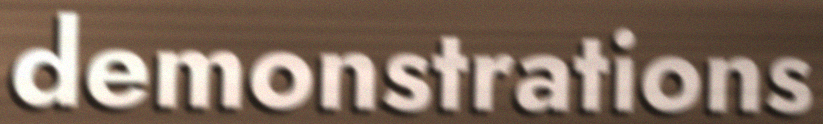
demonstrations